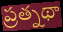
ప్రత్నథా